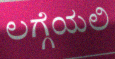
ಲಗ್ಗೆಯಲಿ